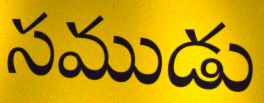
సముడు